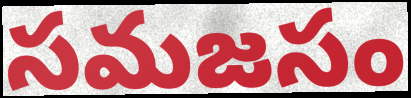
సమజసం